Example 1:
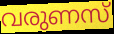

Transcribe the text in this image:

വരുണസ്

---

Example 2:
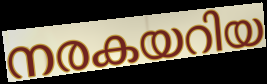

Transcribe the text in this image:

നരകയറിയ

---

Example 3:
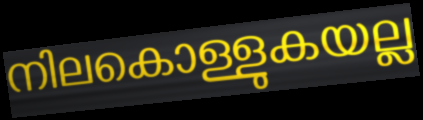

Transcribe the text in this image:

നിലകൊള്ളുകയല്ല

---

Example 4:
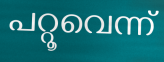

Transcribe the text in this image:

പറ്റൂവെന്ന്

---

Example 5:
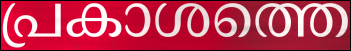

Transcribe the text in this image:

പ്രകാശത്തെ